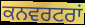
ਕਨਵਰਟਰਾਂ